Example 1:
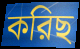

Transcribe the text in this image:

করিছ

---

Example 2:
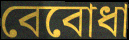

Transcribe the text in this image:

বেবোধা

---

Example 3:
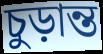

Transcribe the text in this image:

চুড়ান্ত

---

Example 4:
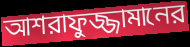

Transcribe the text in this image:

আশরাফুজ্জামানের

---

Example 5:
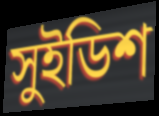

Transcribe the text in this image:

সুইডিশ